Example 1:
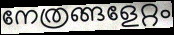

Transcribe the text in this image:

നേത്രങ്ങളേറ്റം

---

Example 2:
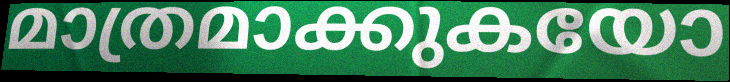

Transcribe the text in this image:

മാത്രമാക്കുകയോ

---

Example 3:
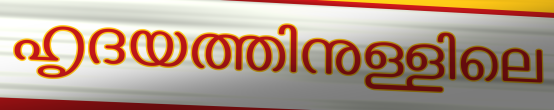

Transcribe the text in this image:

ഹൃദയത്തിനുള്ളിലെ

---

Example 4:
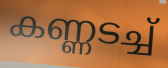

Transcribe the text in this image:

കണ്ണടച്ച്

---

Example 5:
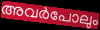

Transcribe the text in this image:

അവർപോലും